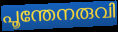
പൂന്തേനരുവി